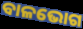
ବାଳଭୋଗ